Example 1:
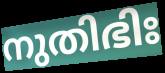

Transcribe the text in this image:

നുതിഭിഃ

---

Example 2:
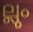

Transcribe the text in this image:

ല്ലും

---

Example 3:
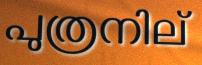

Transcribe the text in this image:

പുത്രനില്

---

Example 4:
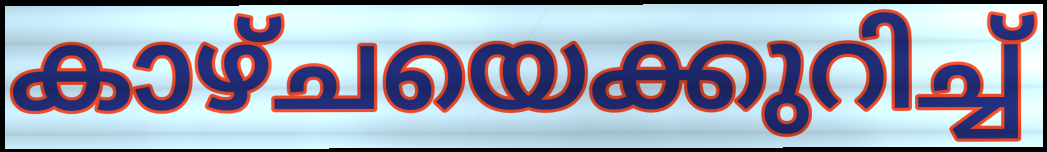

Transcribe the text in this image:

കാഴ്ചയെക്കുറിച്ച്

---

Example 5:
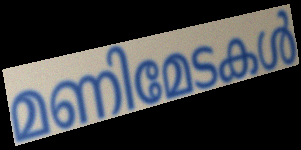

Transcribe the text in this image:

മണിമേടകൾ